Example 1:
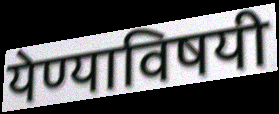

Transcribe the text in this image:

येण्याविषयी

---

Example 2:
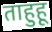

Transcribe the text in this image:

ताहुहू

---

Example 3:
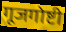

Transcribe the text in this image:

गूजगोष्टी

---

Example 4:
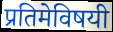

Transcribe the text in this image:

प्रतिमेविषयी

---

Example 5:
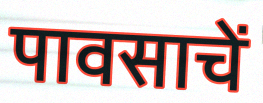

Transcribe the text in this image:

पावसाचें